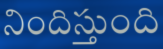
నిందిస్తుంది